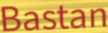
Bastan